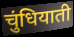
चुंधियाती